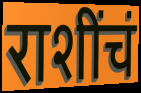
राशींचं